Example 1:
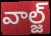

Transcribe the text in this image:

వాల్జ్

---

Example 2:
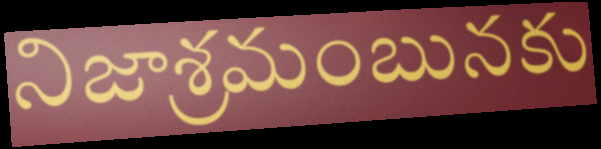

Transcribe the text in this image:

నిజాశ్రమంబునకు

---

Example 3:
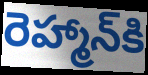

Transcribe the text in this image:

రెహ్మాన్‌కి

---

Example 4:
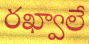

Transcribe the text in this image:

రఖ్వాలే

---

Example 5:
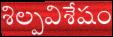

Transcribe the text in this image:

శిల్పవిశేషం